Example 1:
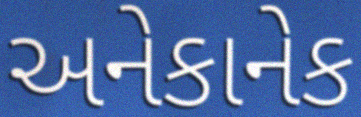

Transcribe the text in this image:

અનેકાનેક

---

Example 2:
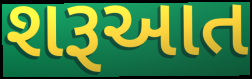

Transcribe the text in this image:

શરૂઆત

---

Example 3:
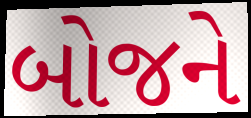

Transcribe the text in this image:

બોજને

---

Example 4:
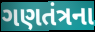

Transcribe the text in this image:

ગણતંત્રના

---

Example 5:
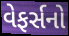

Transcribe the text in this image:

વેફર્સનો